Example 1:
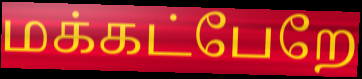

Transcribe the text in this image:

மக்கட்பேறே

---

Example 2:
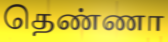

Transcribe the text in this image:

தெண்ணா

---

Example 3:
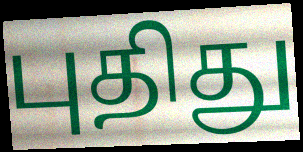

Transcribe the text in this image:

புதிது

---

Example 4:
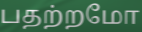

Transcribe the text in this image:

பதற்றமோ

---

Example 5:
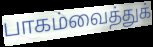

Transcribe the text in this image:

பாகம்வைத்துக்